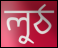
লুঠ